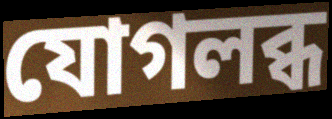
যোগলব্ধ